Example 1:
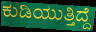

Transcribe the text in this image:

ಕುಡಿಯುತ್ತಿದ್ದೆ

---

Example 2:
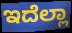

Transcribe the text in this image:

ಇದೆಲ್ಲಾ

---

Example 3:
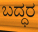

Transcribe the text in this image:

ಬದ್ಧರ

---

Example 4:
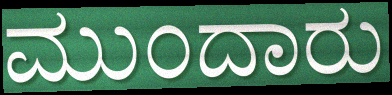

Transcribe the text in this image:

ಮುಂದಾರು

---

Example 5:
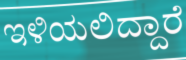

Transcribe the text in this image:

ಇಳಿಯಲಿದ್ದಾರೆ